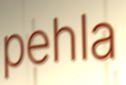
pehla